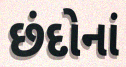
છંદોનાં